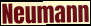
Neumann